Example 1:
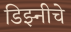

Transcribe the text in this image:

डिझ्नीचे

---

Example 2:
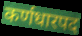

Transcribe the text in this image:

कर्णधारपद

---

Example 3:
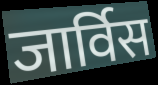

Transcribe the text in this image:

जार्विस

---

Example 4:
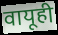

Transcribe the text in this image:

वायूही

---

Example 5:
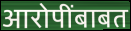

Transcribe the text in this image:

आरोपींबाबत